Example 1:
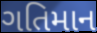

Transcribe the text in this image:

ગતિમાન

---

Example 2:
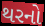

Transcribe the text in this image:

થરનો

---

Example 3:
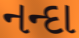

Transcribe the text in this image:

નન્દા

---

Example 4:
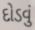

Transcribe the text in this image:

દોડવું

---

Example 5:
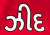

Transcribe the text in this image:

ઝીદ